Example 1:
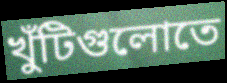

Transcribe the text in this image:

খুঁটিগুলোতে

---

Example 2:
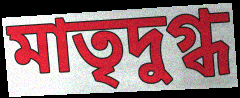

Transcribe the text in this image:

মাতৃদুগ্ধ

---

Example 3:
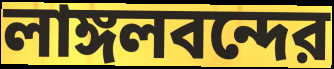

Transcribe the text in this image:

লাঙ্গলবন্দের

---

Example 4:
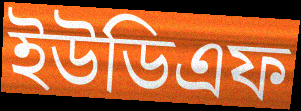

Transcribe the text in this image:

ইউডিএফ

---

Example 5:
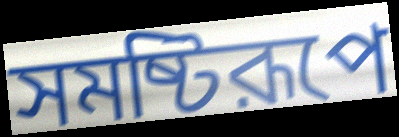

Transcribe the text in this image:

সমষ্টিরূপে